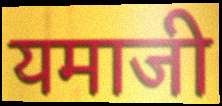
यमाजी